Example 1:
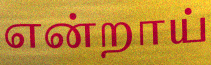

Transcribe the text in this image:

என்றாய்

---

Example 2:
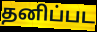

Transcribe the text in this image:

தனிப்பட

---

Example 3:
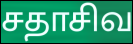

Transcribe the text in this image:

சதாசிவ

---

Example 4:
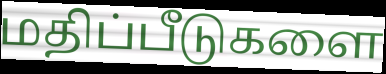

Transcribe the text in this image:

மதிப்பீடுகளை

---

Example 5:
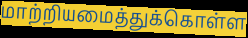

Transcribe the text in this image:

மாற்றியமைத்துக்கொள்ள